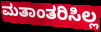
ಮತಾಂತರಿಸಿಲ್ಲ